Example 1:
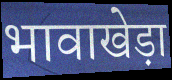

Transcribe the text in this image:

भावाखेड़ा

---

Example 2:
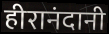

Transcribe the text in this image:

हीरानंदानी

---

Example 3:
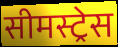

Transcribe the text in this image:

सीमस्ट्रेस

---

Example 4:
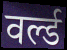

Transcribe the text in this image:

वर्ल्ड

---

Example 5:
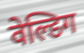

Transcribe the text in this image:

वेल्डिग